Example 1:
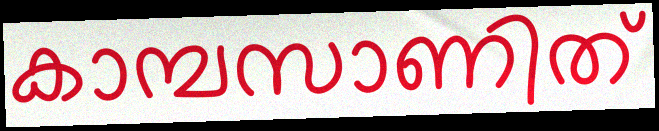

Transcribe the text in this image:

കാമ്പസാണിത്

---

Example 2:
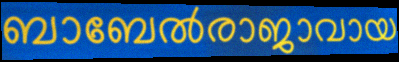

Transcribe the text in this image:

ബാബേൽരാജാവായ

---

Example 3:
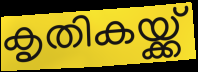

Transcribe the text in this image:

കൃതികയ്ക്ക്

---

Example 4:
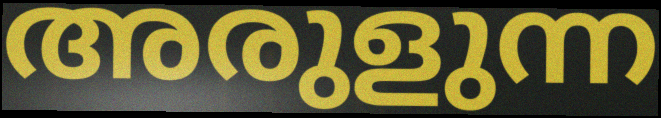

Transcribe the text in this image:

അരുളുന്ന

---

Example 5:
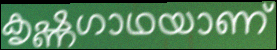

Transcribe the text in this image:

കൃഷ്ണഗാഥയാണ്